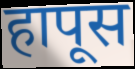
हापूस